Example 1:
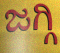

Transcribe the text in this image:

ಜಗ್ಗಿ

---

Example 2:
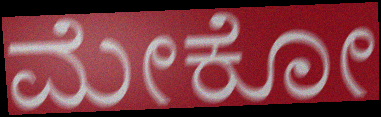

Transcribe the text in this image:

ಮೇಕೋ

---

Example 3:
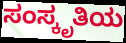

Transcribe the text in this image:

ಸಂಸ್ಕೃತಿಯ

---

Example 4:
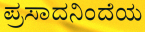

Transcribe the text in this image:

ಪ್ರಸಾದನಿಂದೆಯ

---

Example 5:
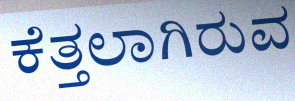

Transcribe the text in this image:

ಕೆತ್ತಲಾಗಿರುವ